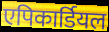
एपिकार्डियल